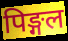
पिङ्गल